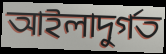
আইলাদুর্গত